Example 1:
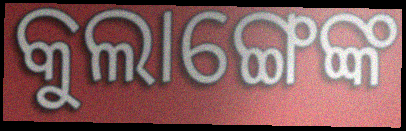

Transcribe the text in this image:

କୁଲାଙ୍ଗେଙ୍କ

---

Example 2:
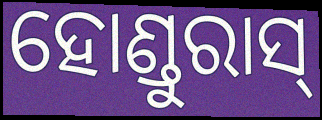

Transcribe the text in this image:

ହୋଣ୍ଡୁରାସ୍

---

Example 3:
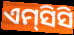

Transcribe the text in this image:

ଏମ୍‌ସିସି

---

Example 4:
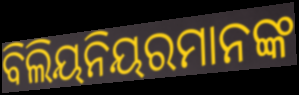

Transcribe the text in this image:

ବିଲିୟନିୟରମାନଙ୍କ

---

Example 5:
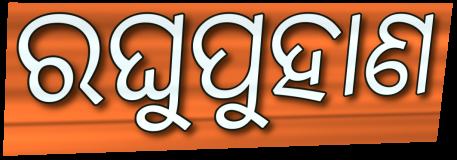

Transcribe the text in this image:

ରଘୁପୁହାଣ